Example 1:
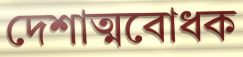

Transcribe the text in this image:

দেশাত্মবোধক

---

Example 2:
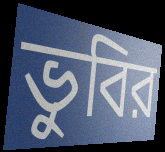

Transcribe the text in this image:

ভুবির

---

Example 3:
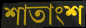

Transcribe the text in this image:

শাতাংশ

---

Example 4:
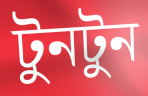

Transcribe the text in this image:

টুনটুন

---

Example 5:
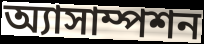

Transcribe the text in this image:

অ্যাসাম্পশন